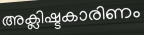
അക്ലിഷ്ടകാരിണം